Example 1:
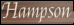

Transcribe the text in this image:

Hampson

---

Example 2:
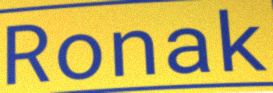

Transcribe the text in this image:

Ronak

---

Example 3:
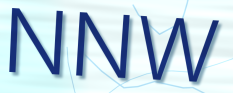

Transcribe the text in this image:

NNW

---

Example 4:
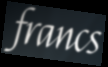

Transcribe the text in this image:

francs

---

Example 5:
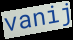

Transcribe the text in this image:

vanij